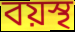
বয়স্থ